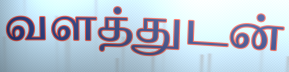
வளத்துடன்